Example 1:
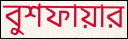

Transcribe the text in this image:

বুশফায়ার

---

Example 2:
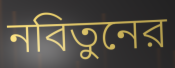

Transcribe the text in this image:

নবিতুনের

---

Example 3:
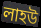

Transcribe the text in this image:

লাহউ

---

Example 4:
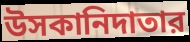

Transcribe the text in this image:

উসকানিদাতার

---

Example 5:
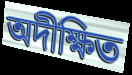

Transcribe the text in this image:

অদীক্ষিত